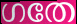
ഗതേ